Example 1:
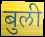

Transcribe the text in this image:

बुली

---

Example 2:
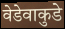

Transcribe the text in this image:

वेडेवाकुडे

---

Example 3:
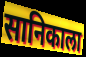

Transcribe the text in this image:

सानिकाला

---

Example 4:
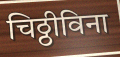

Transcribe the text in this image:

चिठ्ठीविना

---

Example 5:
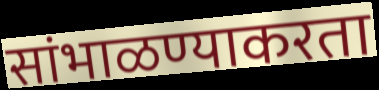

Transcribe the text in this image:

सांभाळण्याकरता